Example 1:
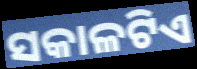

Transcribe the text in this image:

ସକାଳଟିଏ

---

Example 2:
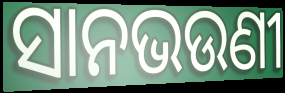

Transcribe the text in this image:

ସାନଭଉଣୀ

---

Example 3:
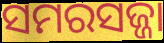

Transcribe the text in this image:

ସମରସଜ୍ଜା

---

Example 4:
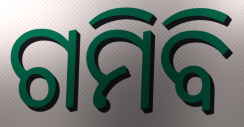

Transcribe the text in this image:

ଗମିବି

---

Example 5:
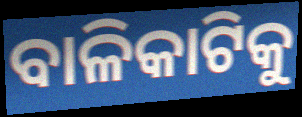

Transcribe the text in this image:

ବାଳିକାଟିକୁ